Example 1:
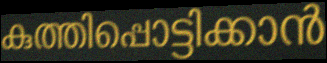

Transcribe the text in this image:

കുത്തിപ്പൊട്ടിക്കാൻ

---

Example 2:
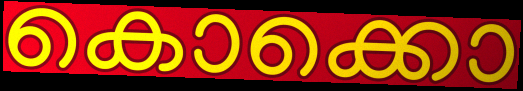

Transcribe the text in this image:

കൊക്കൊ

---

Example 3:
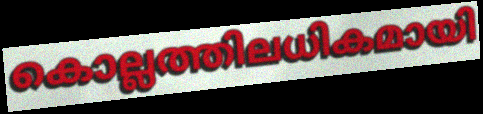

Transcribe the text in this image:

കൊല്ലത്തിലധികമായി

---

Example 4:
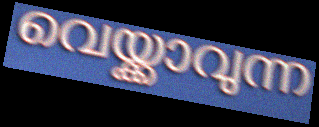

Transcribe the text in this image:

വെയ്ക്കാവുന്ന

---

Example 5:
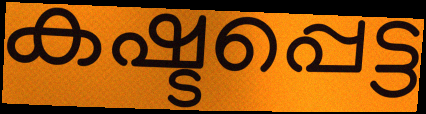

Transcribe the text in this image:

കഷ്ടപ്പെട്ട